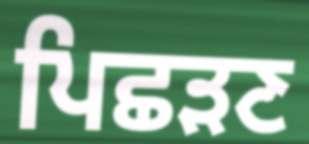
ਪਿਛੜਣ